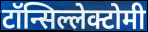
टॉन्सिल्लेक्टोमी